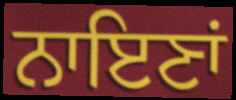
ਨਾਇਣਾਂ